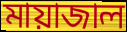
মায়াজাল